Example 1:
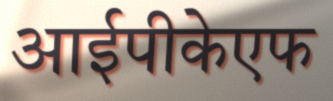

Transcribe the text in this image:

आईपीकेएफ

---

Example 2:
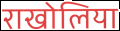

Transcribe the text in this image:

राखोलिया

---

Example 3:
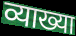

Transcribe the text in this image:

व्याख्‍या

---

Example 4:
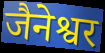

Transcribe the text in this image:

जैनेश्वर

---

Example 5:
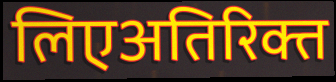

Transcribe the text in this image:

लिएअतिरिक्त